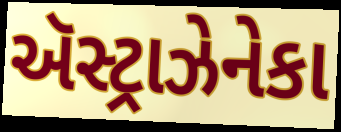
ઍસ્ટ્રાઝેનેકા